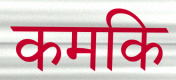
कमकि